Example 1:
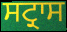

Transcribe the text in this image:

ਸਟ੍ਰਾਸ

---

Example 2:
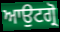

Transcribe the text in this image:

ਆਉਟਗ੍ਰੋ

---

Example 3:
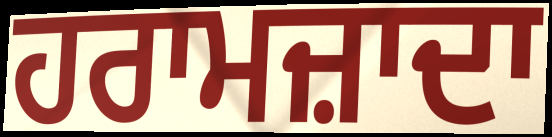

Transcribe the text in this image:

ਹਰਾਮਜ਼ਾਦਾ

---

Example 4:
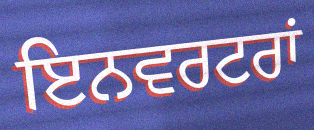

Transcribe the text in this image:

ਇਨਵਰਟਰਾਂ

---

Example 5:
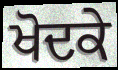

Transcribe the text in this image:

ਖੋਦਕੇ